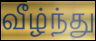
வீழ்ந்து